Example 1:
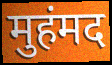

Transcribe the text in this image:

मुहंमद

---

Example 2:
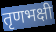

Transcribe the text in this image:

तृणभक्षी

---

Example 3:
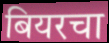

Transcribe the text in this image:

बियरचा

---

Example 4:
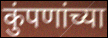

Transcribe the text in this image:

कुंपणांच्या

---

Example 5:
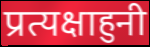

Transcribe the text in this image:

प्रत्यक्षाहुनी